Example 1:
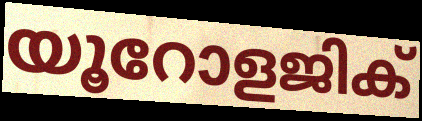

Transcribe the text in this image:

യൂറോളജിക്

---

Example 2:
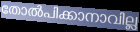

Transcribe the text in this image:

തോൽപിക്കാനാവില്ല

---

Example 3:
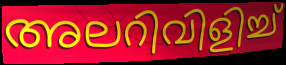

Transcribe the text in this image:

അലറിവിളിച്ച്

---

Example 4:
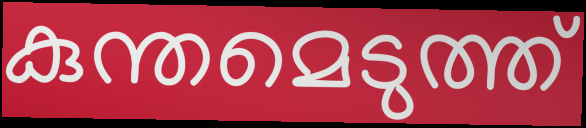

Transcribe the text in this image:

കുന്തമെടുത്ത്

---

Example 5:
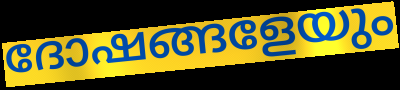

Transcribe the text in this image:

ദോഷങ്ങളേയും